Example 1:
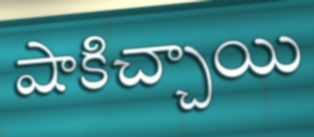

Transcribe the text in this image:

షాకిచ్చాయి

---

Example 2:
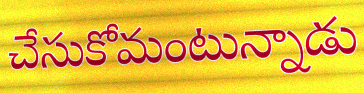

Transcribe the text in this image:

చేసుకోమంటున్నాడు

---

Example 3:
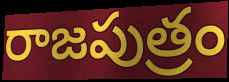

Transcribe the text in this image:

రాజపుత్రం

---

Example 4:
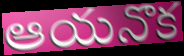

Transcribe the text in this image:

ఆయనొక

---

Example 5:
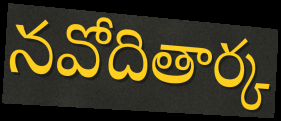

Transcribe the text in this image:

నవోదితార్క